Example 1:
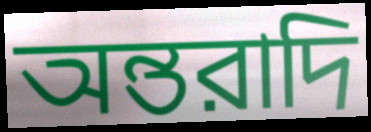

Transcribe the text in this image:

অন্তরাদি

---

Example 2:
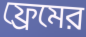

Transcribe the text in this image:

ফ্রেমের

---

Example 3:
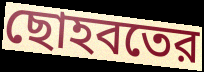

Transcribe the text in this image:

ছোহবতের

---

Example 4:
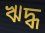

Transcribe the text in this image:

ঋদ্ধ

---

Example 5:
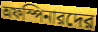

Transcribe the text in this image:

অফস্পিনারদের